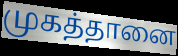
முகத்தானை